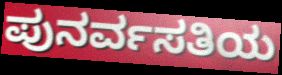
ಪುನರ್ವಸತಿಯ